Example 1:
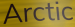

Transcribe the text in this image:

Arctic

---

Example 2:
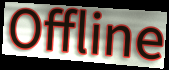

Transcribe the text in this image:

Offline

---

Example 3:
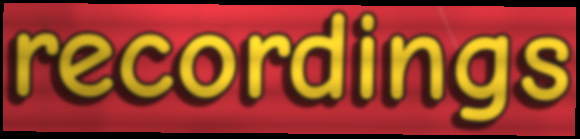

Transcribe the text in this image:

recordings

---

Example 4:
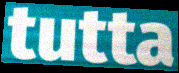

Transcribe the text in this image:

tutta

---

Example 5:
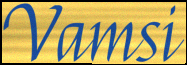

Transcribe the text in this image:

Vamsi